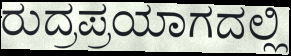
ರುದ್ರಪ್ರಯಾಗದಲ್ಲಿ